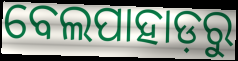
ବେଲପାହାଡ଼ରୁ